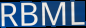
RBML